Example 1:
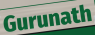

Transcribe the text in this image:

Gurunath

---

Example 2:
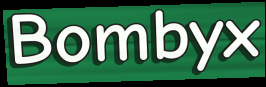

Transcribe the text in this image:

Bombyx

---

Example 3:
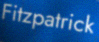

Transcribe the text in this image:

Fitzpatrick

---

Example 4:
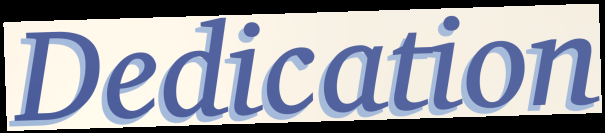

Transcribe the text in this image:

Dedication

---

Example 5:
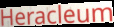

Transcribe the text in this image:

Heracleum